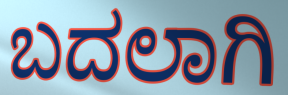
ಬದಲಾಗಿ